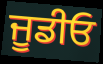
ਜੂਡੀਓ